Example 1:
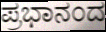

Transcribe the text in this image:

ಪ್ರಭಾನಂದ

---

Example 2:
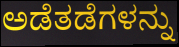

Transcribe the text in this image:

ಅಡೆತಡೆಗಳನ್ನು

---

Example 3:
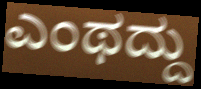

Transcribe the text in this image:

ಎಂಥದ್ದು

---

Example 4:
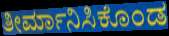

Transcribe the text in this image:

ತೀರ್ಮಾನಿಸಿಕೊಂಡ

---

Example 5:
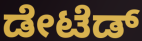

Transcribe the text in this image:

ಡೇಟೆಡ್